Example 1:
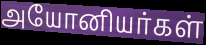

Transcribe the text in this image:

அயோனியர்கள்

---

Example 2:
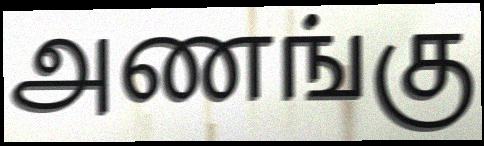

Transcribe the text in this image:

அணங்கு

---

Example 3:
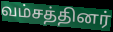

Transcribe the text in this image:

வம்சத்தினர்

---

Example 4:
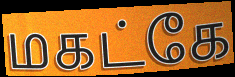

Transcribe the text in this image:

மகட்கே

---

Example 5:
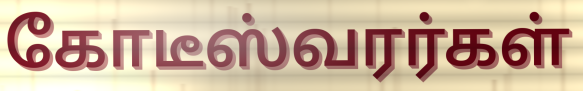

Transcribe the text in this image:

கோடீஸ்வரர்கள்